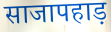
साजापहाड़